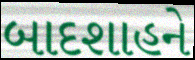
બાદશાહને